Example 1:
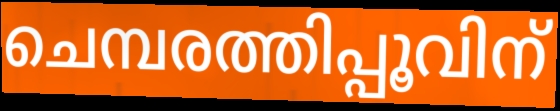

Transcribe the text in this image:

ചെമ്പരത്തിപ്പൂവിന്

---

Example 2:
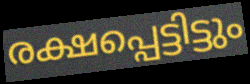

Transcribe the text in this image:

രക്ഷപ്പെട്ടിട്ടും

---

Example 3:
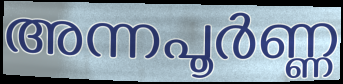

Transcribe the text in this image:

അന്നപൂർണ്ണ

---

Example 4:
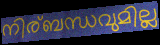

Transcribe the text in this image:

നിര്ബന്ധവുമില്ല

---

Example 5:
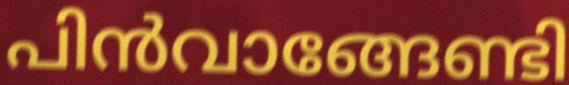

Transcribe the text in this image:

പിൻവാങ്ങേണ്ടി